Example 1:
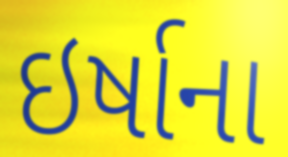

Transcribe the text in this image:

ઇર્ષાના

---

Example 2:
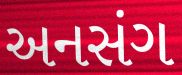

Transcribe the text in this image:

અનસંગ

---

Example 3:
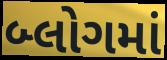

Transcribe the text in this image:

બ્લોગમાં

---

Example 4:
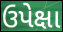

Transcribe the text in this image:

ઉપેક્ષા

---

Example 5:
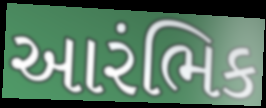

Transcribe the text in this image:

આરંભિક